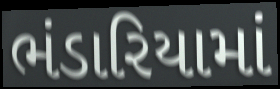
ભંડારિયામાં